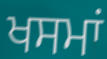
ਖਸਮਾਂ